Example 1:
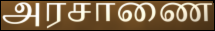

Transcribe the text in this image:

அரசாணை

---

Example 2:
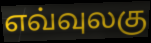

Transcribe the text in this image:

எவ்வுலகு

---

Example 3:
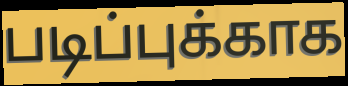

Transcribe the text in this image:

படிப்புக்காக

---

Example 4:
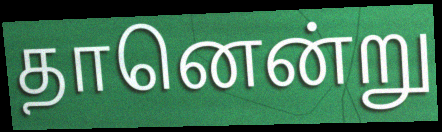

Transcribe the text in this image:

தானென்று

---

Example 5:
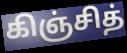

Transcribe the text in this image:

கிஞ்சித்